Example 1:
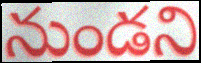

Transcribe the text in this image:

నుండని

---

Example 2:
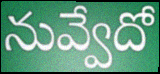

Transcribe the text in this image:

నువ్వేదో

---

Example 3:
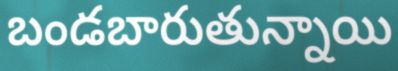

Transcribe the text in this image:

బండబారుతున్నాయి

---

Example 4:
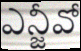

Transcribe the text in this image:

ఎన్జీవో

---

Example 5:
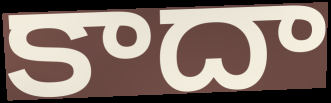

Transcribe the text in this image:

కాదా